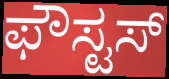
ಫೌಸ್ಟಸ್